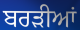
ਬਰੜੀਆਂ